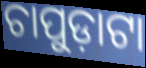
ଚାପୁଡ଼ାଟା